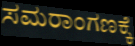
ಸಮರಾಂಗಣಕ್ಕೆ